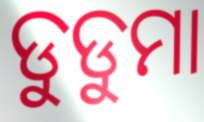
ଡୁଡୁମା